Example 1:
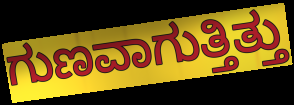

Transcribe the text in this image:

ಗುಣವಾಗುತ್ತಿತ್ತು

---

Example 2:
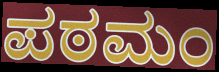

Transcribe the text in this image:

ಪಠಮಂ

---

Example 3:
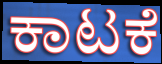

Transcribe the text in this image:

ಕಾಟಕೆ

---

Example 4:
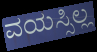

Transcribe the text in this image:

ವಯಸ್ಸಿಲ್ಲ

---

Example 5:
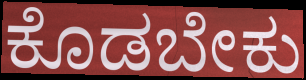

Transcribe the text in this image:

ಕೊಡಬೇಕು